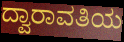
ದ್ವಾರಾವತಿಯ